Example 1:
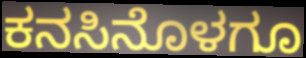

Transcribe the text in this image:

ಕನಸಿನೊಳಗೂ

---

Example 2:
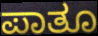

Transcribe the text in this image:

ಪಾತೂ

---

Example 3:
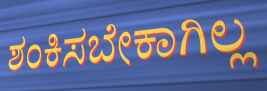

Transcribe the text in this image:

ಶಂಕಿಸಬೇಕಾಗಿಲ್ಲ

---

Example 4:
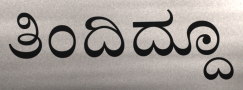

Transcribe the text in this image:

ತಿಂದಿದ್ದೂ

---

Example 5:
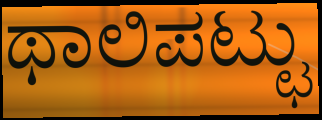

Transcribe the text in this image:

ಥಾಲಿಪಟ್ಟು